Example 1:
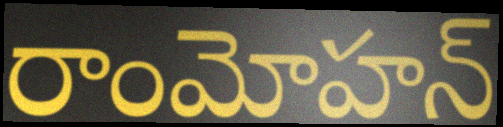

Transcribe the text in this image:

రాంమోహన్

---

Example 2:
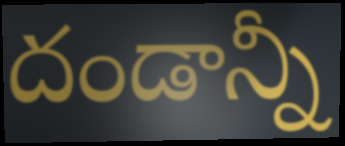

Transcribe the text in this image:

దండాన్నీ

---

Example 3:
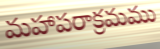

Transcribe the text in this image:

మహాపరాక్రమము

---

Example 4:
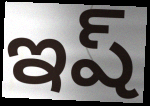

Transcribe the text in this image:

ఇష్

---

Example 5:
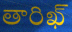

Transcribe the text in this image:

తారిఖ్